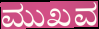
ಮುಖವ